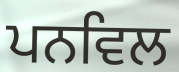
ਪਨਵਿਲ